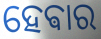
ହେଵାର